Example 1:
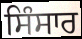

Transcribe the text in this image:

ਸਿੰਸਾਰ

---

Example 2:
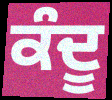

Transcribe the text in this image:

ਕੰਦੂ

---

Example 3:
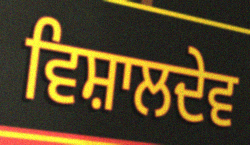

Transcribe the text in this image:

ਵਿਸ਼ਾਲਦੇਵ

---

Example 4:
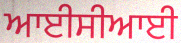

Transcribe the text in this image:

ਆਈਸੀਆਈ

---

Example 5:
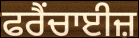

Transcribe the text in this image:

ਫਰੈਂਚਾਈਜ਼